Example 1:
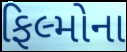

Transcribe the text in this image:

ફિલ્મોના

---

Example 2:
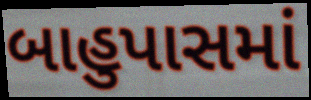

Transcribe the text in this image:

બાહુપાસમાં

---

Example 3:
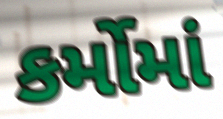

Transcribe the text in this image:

કર્મોમાં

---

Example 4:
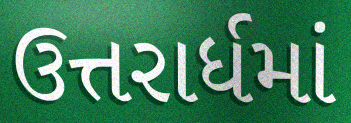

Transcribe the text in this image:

ઉત્તરાર્ધમાં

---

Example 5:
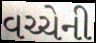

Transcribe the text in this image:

વચ્ચેની